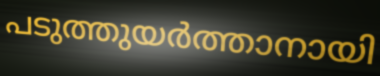
പടുത്തുയർത്താനായി